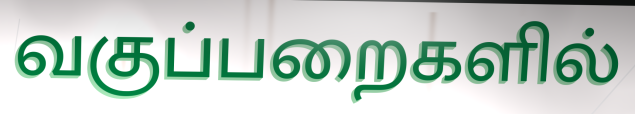
வகுப்பறைகளில்